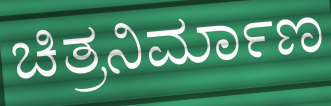
ಚಿತ್ರನಿರ್ಮಾಣ